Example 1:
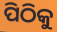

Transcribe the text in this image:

ପିଠିକୁ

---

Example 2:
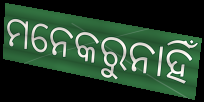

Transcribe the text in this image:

ମନେକରୁନାହିଁ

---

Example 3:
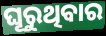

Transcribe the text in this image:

ଘୂରୁଥିବାର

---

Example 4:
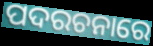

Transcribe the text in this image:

ପଦରଚନାରେ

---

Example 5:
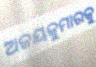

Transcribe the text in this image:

ଅଜୟକୁମାରକୁ